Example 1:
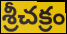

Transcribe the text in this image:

శ్రీచక్రం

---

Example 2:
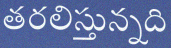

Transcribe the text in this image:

తరలిస్తున్నది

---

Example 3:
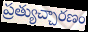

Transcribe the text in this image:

ప్రత్యుచ్చారణం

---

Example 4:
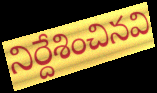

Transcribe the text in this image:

నిర్దేశించినవి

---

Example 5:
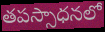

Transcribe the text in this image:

తపస్సాధనలో